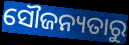
ସୌଜନ୍ୟତାରୁ